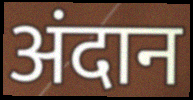
अंदान